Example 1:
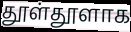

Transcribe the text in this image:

தூள்தூளாக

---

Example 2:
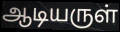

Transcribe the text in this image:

ஆடியருள்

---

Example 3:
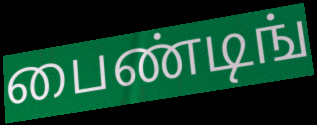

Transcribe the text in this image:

பைண்டிங்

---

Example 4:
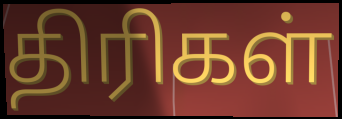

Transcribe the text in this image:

திரிகள்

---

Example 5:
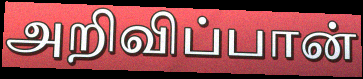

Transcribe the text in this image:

அறிவிப்பான்